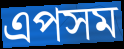
এপসম